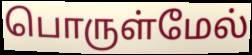
பொருள்மேல்